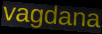
vagdana